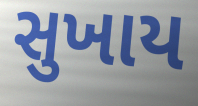
સુખાય